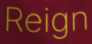
Reign